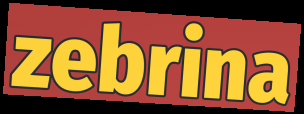
zebrina